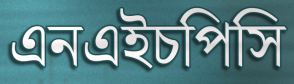
এনএইচপিসি